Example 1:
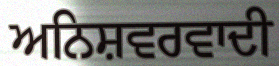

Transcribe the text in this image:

ਅਨਿਸ਼ਵਰਵਾਦੀ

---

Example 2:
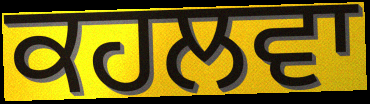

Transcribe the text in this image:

ਕਹਲਵਾ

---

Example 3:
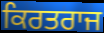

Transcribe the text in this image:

ਕਿਰਤਰਾਜ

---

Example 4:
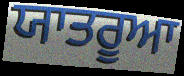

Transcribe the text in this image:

ਯਾਤਰੂਆ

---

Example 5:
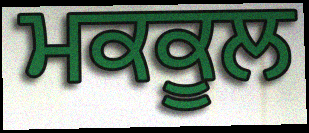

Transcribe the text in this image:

ਮਕਕੂਲ